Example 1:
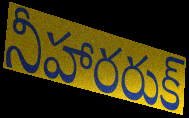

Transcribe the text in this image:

నీహారరుక్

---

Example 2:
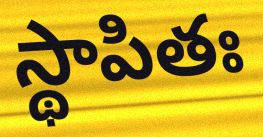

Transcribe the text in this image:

స్థాపితః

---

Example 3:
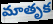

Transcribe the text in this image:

మాతృక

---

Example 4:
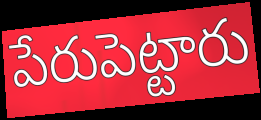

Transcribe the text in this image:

పేరుపెట్టారు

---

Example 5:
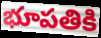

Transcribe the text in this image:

భూపతికి